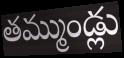
తమ్ముండ్లు